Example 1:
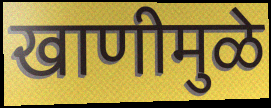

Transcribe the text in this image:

खाणीमुळे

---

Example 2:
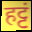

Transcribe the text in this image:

हट्टं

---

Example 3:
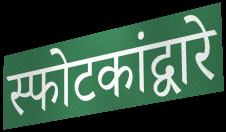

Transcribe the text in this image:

स्फोटकांद्वारे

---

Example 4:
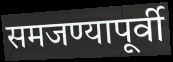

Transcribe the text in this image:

समजण्यापूर्वी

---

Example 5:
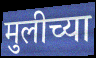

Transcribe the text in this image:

मुलीच्‍या